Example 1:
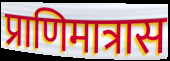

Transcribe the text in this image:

प्राणिमात्रास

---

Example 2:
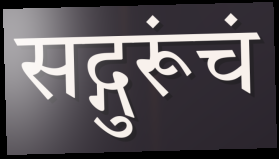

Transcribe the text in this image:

सद्गुरूंचं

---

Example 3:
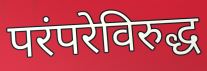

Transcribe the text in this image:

परंपरेविरुद्ध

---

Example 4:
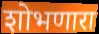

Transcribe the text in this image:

शोभणारा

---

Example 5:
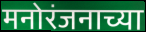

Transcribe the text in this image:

मनोरंजनाच्या